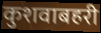
कुशवाबहरी